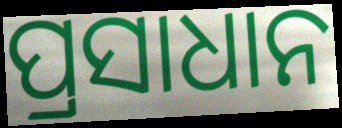
ପ୍ରସାଧାନ